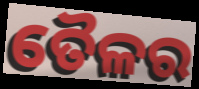
ତୈଳର